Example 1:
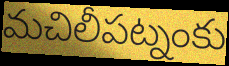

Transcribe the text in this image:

మచిలీపట్నంకు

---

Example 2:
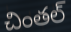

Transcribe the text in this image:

చింతల్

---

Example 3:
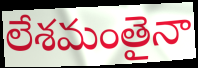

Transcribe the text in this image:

లేశమంతైనా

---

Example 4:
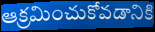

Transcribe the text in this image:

ఆక్రమించుకోవడానికి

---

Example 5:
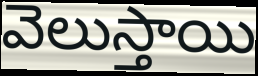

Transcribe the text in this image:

వెలుస్తాయి